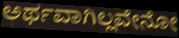
ಅರ್ಥವಾಗಿಲ್ಲವೇನೋ